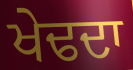
ਖੇਢਦਾ